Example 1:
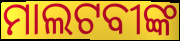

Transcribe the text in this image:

ମାଲଟବୀଙ୍କ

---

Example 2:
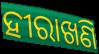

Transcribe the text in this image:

ହୀରାଖଣି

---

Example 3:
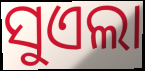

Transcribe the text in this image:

ସୁଏଲା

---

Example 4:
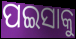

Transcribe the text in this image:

ପଇସାକୁ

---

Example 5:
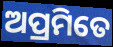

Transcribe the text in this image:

ଅପ୍ରମିତେ